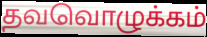
தவவொழுக்கம்